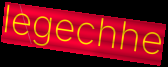
legechhe